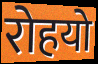
रोहयो